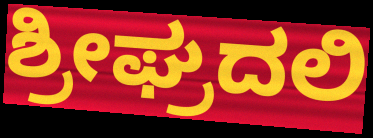
ಶ್ರೀಘ್ರದಲಿ